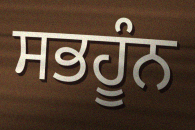
ਸਭਹੂੰਨ